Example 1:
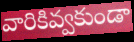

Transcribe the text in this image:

వారికివ్వకుండా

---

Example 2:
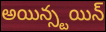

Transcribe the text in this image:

అయిన్స్టయిన్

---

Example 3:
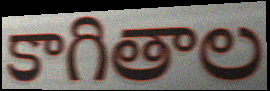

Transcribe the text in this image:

కాగితాల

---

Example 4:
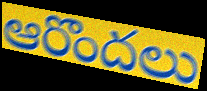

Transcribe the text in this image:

ఆరొందలు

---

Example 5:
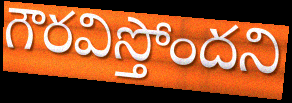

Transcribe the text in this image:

గౌరవిస్తోందని